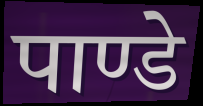
पाण्डे